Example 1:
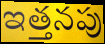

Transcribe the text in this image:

ఇత్తనపు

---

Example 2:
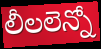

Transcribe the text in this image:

లీలలెన్నో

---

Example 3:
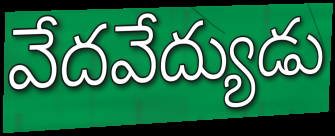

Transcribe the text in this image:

వేదవేద్యుడు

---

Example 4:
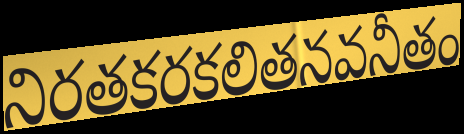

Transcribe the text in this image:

నిరతకరకలితనవనీతం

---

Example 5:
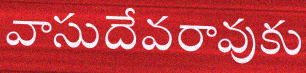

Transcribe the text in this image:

వాసుదేవరావుకు